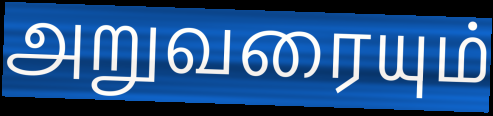
அறுவரையும்